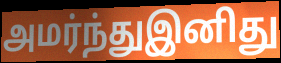
அமர்ந்துஇனிது